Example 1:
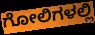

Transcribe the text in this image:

ಗೋಲಿಗಳಲ್ಲಿ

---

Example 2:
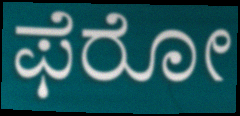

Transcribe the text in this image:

ಫೆರೋ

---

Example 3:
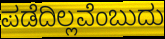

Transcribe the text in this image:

ಪಡೆದಿಲ್ಲವೆಂಬುದು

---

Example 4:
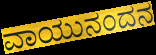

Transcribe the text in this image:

ವಾಯುನಂದನ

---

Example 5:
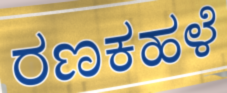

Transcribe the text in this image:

ರಣಕಹಳೆ